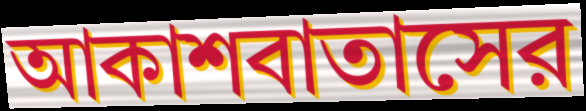
আকাশবাতাসের